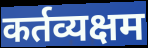
कर्तव्यक्षम